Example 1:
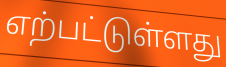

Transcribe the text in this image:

எற்பட்டுள்ளது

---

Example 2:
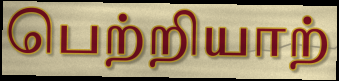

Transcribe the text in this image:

பெற்றியாற்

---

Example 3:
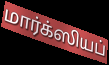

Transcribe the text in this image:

மார்க்ஸியப்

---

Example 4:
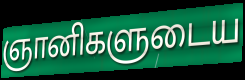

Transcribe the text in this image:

ஞானிகளுடைய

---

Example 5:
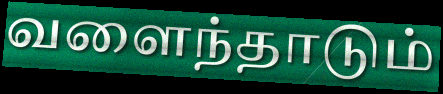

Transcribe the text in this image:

வளைந்தாடும்